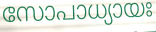
സോപാധ്യായഃ